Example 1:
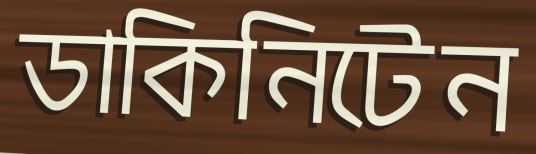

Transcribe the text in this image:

ডাকিনিটেন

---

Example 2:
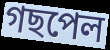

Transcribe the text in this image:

গছপেল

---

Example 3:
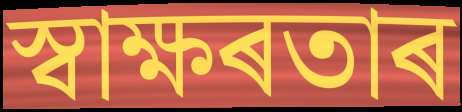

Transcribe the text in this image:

স্বাক্ষৰতাৰ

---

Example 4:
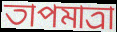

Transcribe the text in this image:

তাপমাত্ৰা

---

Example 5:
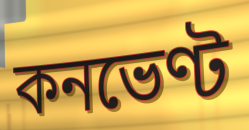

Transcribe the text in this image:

কনভেণ্ট